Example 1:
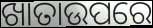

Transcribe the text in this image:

ଖାତାଉପରେ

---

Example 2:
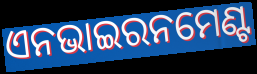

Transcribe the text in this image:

ଏନଭାଇରନମେଣ୍ଟ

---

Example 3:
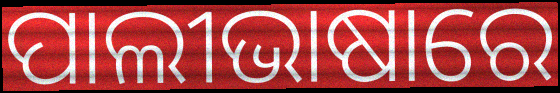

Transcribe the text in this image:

ପାଲୀଭାଷାରେ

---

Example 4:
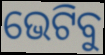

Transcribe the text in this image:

ଭେଟିବୁ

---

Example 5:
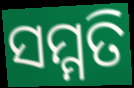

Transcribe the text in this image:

ସମ୍ମତି